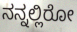
ನನ್ನಲ್ಲಿರೋ